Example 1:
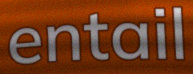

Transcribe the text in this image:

entail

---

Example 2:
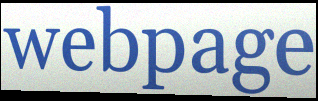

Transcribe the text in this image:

webpage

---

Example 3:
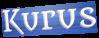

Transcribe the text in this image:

Kurus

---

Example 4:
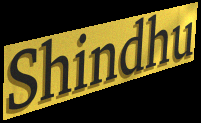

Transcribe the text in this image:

Shindhu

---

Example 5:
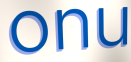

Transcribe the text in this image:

onu